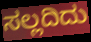
ಸಲ್ಲದಿದು